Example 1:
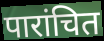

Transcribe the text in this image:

पारांचित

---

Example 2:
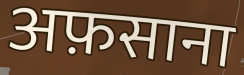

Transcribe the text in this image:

अफ़साना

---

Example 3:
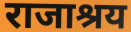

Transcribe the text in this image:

राजाश्रय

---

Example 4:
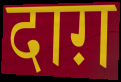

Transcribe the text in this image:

दाग़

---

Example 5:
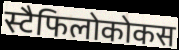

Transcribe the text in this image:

स्टैफिलोकोकस